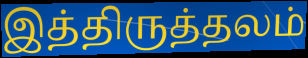
இத்திருத்தலம்